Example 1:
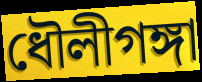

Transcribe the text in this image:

ধৌলীগঙ্গা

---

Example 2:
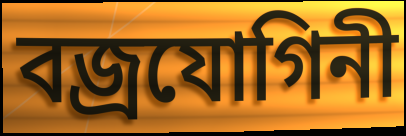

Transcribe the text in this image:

বজ্ৰযোগিনী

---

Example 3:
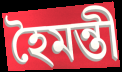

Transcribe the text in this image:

হৈমন্তী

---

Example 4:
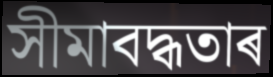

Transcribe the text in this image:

সীমাবদ্ধতাৰ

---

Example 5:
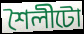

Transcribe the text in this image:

শৈলীটো